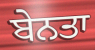
ਬੇਨਤਾ